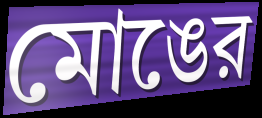
মোঙের